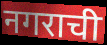
नगराची